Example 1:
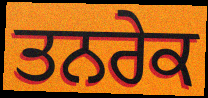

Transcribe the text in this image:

ਤਨਰੇਕ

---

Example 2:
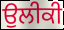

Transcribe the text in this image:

ਉਲੀਕੀ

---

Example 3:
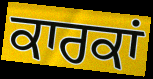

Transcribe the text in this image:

ਕਾਰਕਾਂ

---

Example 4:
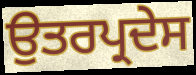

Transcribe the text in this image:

ਉਤਰਪ੍ਰਦੇਸ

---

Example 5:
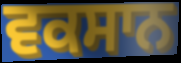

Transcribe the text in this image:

ਵਕਸਾਨ